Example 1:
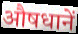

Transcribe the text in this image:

औषधानें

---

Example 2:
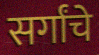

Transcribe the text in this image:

सर्गांचे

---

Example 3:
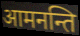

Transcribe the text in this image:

आमनन्ति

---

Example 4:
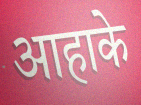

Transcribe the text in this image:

आहाके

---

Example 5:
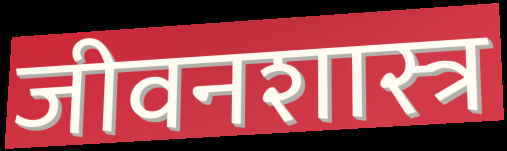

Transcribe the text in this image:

जीवनशास्त्र